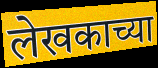
लेखकाच्या